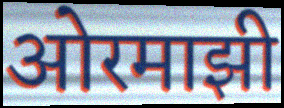
ओरमाझी